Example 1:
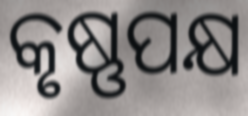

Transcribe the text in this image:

କୃଷ୍ଣପକ୍ଷ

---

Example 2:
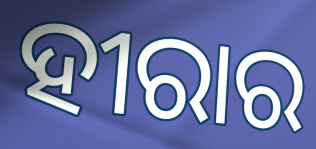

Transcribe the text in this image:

ହୀରାର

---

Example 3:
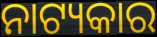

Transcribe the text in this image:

ନାଟ୍ୟକାର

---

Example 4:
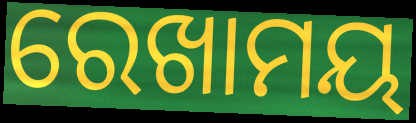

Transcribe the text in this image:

ରେଖାମୟ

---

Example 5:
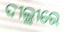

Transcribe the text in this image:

ଦୀଲ୍ଲୀରେ